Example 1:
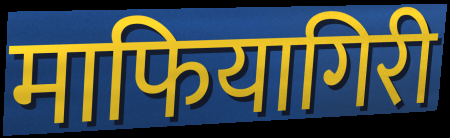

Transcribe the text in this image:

माफियागिरी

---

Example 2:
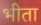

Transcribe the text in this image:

भीता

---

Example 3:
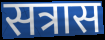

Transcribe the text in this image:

सत्रास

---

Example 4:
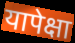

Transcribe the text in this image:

यापेक्षा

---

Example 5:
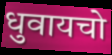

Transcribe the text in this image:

धुवायचो